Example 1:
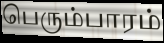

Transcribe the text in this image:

பெரும்பாரம்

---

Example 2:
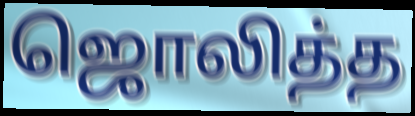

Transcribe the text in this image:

ஜொலித்த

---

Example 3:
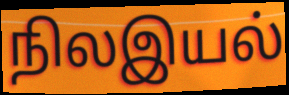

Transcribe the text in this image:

நிலஇயல்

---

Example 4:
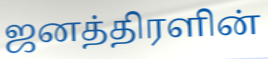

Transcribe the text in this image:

ஜனத்திரளின்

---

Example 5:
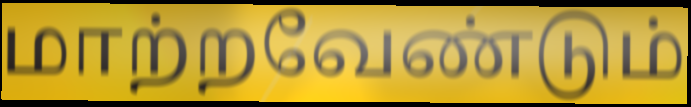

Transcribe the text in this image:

மாற்றவேண்டும்